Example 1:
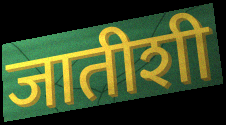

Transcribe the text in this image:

जातीशी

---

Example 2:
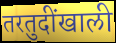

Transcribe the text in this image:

तरतुदींखाली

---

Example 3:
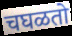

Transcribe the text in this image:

चघळतो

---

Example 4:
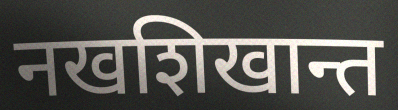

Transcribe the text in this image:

नखशिखान्त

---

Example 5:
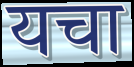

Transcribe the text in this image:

यचा